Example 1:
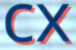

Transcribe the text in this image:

cx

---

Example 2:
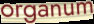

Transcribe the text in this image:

organum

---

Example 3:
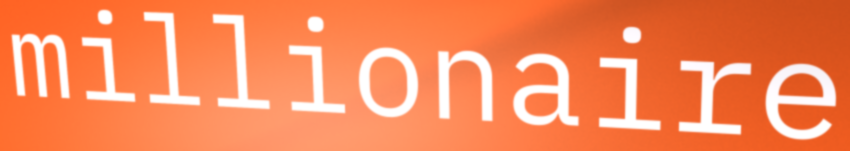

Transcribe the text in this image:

millionaire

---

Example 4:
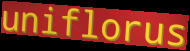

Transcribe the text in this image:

uniflorus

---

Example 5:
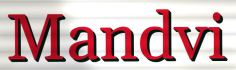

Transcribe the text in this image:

Mandvi